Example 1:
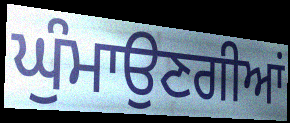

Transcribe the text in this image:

ਘੁੰਮਾਉਣਗੀਆਂ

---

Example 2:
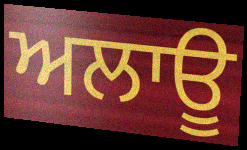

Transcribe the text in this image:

ਅਲਾਊ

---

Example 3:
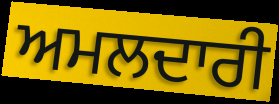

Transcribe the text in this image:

ਅਮਲਦਾਰੀ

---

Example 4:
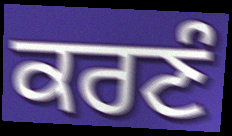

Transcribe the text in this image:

ਕਰਣੰ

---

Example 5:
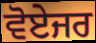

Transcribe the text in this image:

ਵੋਏਜਰ